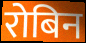
रोबिन